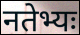
नतेभ्यः